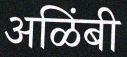
अळिंबी